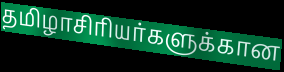
தமிழாசிரியர்களுக்கான